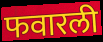
फवारली